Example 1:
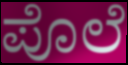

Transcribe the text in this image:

ಪೊಲೆ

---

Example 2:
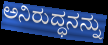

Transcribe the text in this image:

ಅನಿರುದ್ಧನನ್ನು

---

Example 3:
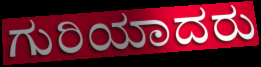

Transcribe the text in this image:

ಗುರಿಯಾದರು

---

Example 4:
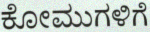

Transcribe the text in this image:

ಕೋಮುಗಳಿಗೆ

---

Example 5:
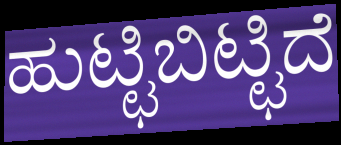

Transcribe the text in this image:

ಹುಟ್ಟಿಬಿಟ್ಟಿದೆ